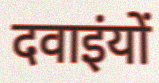
दवाइंयों